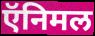
ऍनिमल